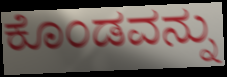
ಕೊಂಡವನ್ನು